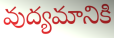
వుద్యమానికి